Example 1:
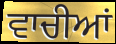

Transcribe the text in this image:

ਵਾਚੀਆਂ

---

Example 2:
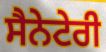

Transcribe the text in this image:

ਸੈਨੇਟੇਰੀ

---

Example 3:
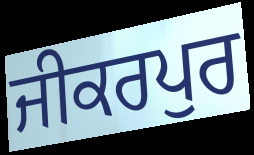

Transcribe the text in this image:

ਜੀਕਰਪੁਰ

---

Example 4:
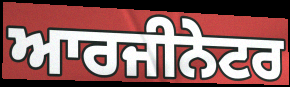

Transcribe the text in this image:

ਆਰਜੀਨੇਟਰ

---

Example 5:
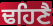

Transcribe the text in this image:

ਢਹਿਣੈ